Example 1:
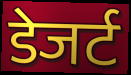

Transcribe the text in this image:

डेजर्ट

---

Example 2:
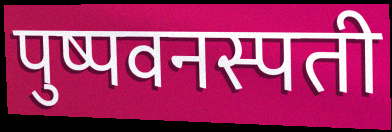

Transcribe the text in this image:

पुष्पवनस्पती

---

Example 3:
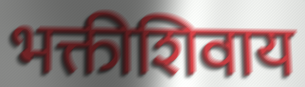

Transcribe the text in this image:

भक्तीशिवाय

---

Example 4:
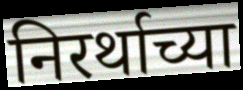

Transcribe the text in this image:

निरर्थाच्या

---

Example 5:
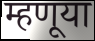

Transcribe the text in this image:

म्हणूया